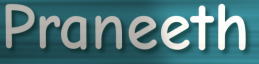
Praneeth